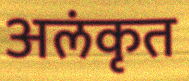
अलंकृत